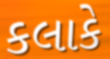
કલાકે